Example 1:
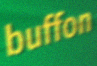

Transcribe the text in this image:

buffon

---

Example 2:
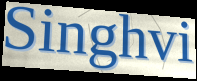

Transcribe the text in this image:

Singhvi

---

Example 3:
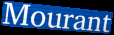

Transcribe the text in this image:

Mourant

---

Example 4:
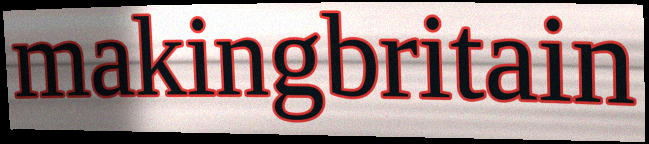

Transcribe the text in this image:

makingbritain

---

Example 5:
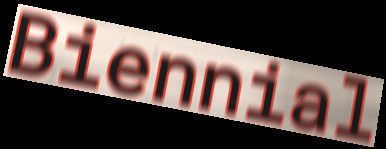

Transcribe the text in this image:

Biennial